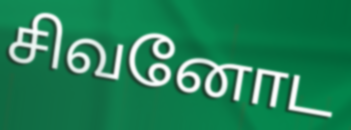
சிவனோட